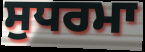
ਸੁਧਰਮਾ